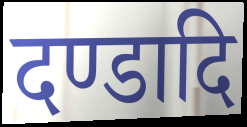
दण्डादि